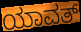
ಯಾವತ್